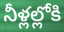
నీళ్లల్లోకి